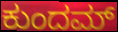
ಕುಂದಮ್